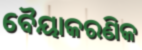
ବୈୟାକରଣିକ